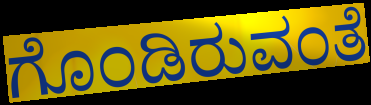
ಗೊಂಡಿರುವಂತೆ